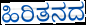
ಹಿರಿತನದ